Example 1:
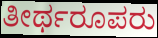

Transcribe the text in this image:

ತೀರ್ಥರೂಪರು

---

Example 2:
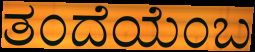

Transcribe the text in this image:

ತಂದೆಯೆಂಬ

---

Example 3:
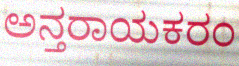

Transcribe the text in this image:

ಅನ್ತರಾಯಕರಂ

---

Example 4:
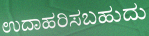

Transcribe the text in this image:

ಉದಾಹರಿಸಬಹುದು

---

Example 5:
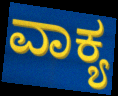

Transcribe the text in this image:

ವಾಕ್ಯ